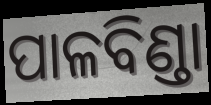
ପାଳବିଣ୍ଡା